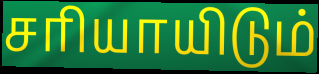
சரியாயிடும்